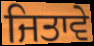
ਜਿਤਾਵੇ